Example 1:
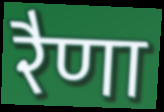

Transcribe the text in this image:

रैणा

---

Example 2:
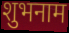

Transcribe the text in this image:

शुभनाम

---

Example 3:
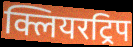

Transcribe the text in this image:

क्लियरट्रिप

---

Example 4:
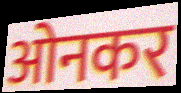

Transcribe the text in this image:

ओनकर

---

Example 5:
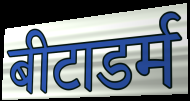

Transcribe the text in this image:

बीटाडर्म